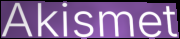
Akismet